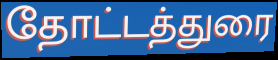
தோட்டத்துரை